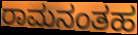
ರಾಮನಂತಹ